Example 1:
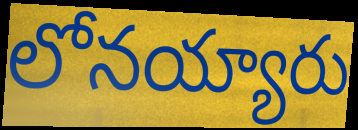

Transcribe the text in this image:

లోనయ్యారు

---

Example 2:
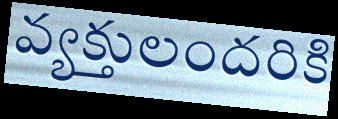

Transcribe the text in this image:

వ్యక్తులందరికి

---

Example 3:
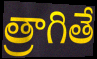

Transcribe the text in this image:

త్రాగితే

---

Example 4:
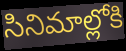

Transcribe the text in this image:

సినిమాల్లోకి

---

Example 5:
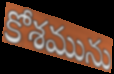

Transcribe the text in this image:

కోశమును